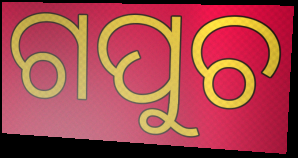
ଗପୁଚ